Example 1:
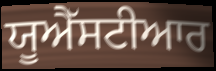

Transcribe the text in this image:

ਯੂਐੱਸਟੀਆਰ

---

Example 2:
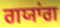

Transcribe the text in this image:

ਗਯਾਂਗ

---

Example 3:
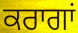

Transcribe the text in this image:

ਕਰਾਗਾਂ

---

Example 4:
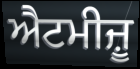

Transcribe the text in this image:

ਐਟਮੀਜ਼ੂ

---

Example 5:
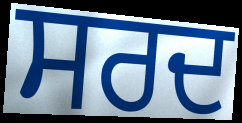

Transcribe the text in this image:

ਸਰਦ